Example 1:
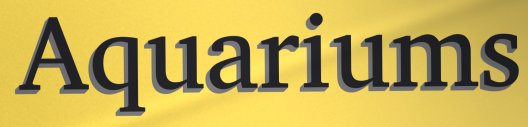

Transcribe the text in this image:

Aquariums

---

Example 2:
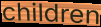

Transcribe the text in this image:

children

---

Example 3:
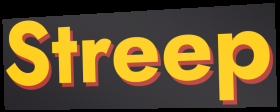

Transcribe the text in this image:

Streep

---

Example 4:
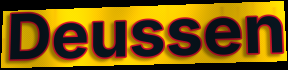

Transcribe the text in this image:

Deussen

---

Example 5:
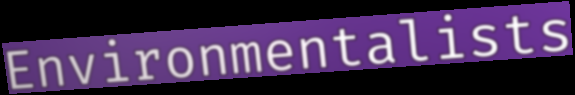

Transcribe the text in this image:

Environmentalists